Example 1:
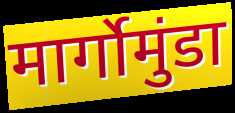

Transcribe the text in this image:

मार्गोमुंडा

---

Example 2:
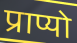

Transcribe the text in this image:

प्राप्यो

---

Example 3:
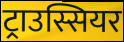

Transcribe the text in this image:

ट्राउस्सियर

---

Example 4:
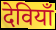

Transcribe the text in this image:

देवियाँ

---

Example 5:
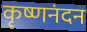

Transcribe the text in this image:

कृष्णनंदन